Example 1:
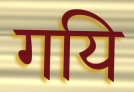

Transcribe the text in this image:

गयि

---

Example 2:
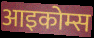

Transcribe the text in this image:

आइकोम्स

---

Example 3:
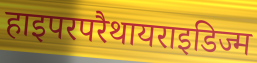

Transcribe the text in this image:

हाइपरपरैथायराइडिज्म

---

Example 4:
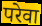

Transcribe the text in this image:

परेवा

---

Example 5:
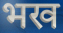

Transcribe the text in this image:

भख